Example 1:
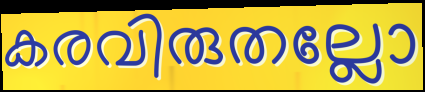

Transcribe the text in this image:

കരവിരുതല്ലോ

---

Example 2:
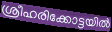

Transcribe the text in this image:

ശ്രീഹരിക്കോട്ടയിൽ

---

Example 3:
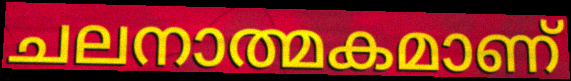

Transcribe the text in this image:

ചലനാത്മകമാണ്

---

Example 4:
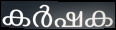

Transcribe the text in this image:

കർഷക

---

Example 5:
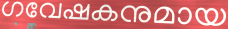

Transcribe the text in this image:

ഗവേഷകനുമായ